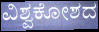
ವಿಶ್ವಕೋಶದ